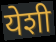
येशी